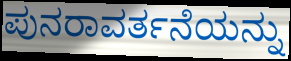
ಪುನರಾವರ್ತನೆಯನ್ನು